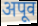
अपूव